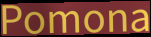
Pomona